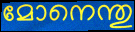
മോനെന്തു